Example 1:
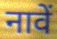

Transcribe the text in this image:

नावें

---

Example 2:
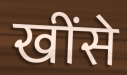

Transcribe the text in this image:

खींसे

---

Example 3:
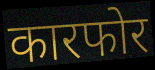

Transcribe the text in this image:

कारफोर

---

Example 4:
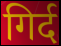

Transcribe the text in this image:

गिर्द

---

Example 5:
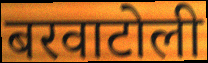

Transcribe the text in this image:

बरवाटोली